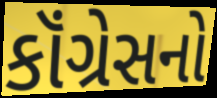
કૉંગ્રેસનો